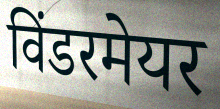
विंडरमेयर